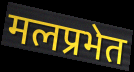
मलप्रभेत